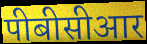
पीबीसीआर